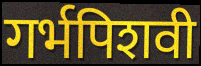
गर्भपिशवी